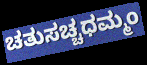
ಚತುಸಚ್ಚಧಮ್ಮಂ